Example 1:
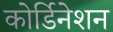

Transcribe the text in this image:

कोर्डिनेशन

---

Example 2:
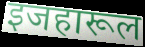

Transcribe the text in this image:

इजहारूल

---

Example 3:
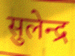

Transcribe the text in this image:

सुलेन्द्र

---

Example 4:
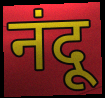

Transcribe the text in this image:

नंदू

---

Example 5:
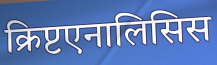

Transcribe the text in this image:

क्रिप्टएनालिसिस